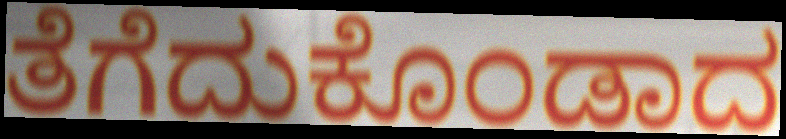
ತೆಗೆದುಕೊಂಡಾದ